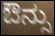
ಔನ್ಸು